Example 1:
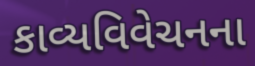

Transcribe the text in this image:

કાવ્યવિવેચનના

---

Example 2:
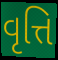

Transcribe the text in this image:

વૃત્તિ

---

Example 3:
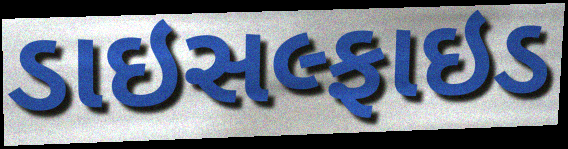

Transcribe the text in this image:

ડાઇસલ્ફાઇડ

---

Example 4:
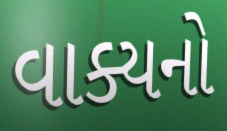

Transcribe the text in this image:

વાક્યનો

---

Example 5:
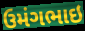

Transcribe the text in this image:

ઉમંગભાઇ